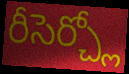
రీసెర్చ్లో